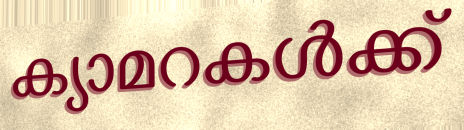
ക്യാമറകൾക്ക്